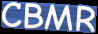
CBMR